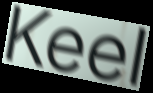
Keel